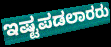
ಇಷ್ಟಪಡಲಾರರು